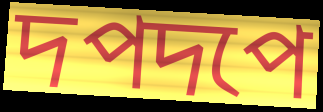
দপদপে